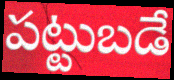
పట్టుబడే